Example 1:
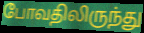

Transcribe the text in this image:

போவதிலிருந்து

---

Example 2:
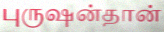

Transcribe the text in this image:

புருஷன்தான்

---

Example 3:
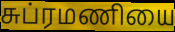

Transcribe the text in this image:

சுப்ரமணியை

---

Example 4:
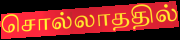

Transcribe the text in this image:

சொல்லாததில்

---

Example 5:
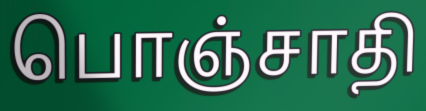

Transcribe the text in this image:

பொஞ்சாதி